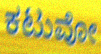
ಕಟುವೋ